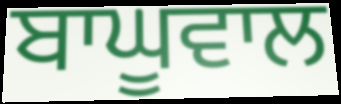
ਬਾਘੂਵਾਲ